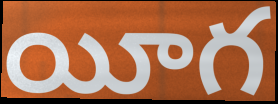
యీగ